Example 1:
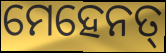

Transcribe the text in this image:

ମେହେନତ୍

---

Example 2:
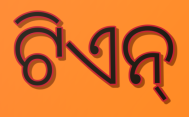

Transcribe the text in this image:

ଟିଏନ୍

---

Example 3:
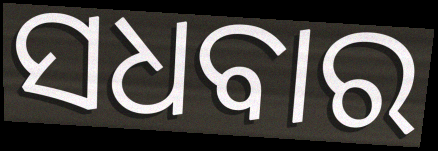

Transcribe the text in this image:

ସଧବାର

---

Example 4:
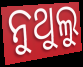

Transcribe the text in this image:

ନୁଥୁଲୁ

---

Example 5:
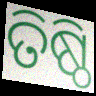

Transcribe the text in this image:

ତିଷ୍ଠି